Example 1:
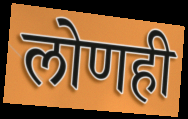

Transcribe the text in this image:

लोणही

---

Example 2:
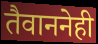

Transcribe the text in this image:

तैवाननेही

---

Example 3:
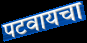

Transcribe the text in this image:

पटवायचा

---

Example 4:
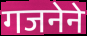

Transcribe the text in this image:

गजनेने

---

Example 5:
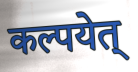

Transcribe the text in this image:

कल्पयेत्